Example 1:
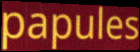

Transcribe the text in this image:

papules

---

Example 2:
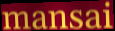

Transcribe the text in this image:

mansai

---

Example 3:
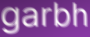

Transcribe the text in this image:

garbh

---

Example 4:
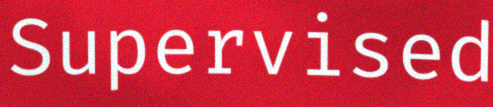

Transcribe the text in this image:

Supervised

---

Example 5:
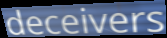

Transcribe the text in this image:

deceivers